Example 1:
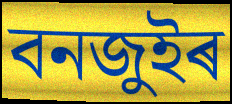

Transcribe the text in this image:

বনজুইৰ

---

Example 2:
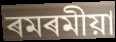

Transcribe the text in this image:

ৰমৰমীয়া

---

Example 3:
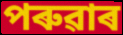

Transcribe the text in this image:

পৰুৱাৰ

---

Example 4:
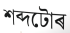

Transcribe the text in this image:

শব্দটোৰ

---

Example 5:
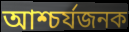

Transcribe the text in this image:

আশ্চৰ্যজনক